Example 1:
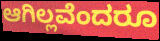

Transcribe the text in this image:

ಆಗಿಲ್ಲವೆಂದರೂ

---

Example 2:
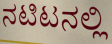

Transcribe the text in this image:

ನಟಿಟನಲ್ಲಿ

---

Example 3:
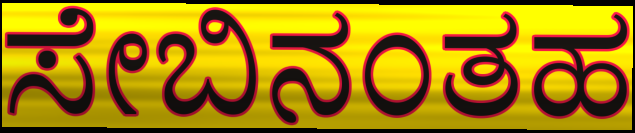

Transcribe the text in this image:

ಸೇಬಿನಂತಹ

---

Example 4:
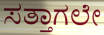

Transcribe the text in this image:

ಸತ್ತಾಗಲೇ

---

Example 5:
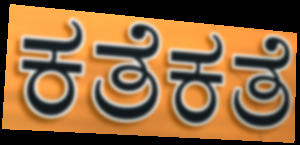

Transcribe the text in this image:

ಕತೆಕತೆ